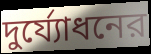
দুর্য্যোধনের